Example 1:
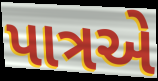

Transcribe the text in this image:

પાત્રએ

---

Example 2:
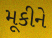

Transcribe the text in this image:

મૂકીને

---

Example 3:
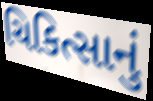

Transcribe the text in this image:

ચિકિત્સાનું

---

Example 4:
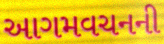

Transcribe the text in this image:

આગમવચનની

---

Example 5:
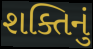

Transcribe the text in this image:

શક્તિનું